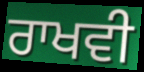
ਰਾਖਵੀ